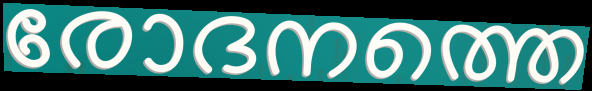
രോദനത്തെ